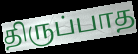
திருப்பாத